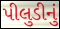
પીલુડીનું